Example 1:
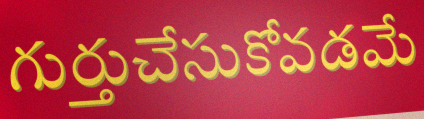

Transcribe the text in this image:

గుర్తుచేసుకోవడమే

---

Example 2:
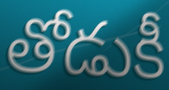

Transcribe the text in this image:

తోడుకీ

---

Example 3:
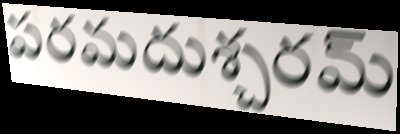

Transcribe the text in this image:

పరమదుశ్చరమ్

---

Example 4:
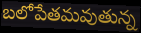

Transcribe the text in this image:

బలోపేతమవుతున్న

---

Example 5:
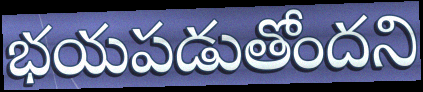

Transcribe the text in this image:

భయపడుతోందని